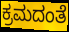
ಕ್ರಮದಂತೆ